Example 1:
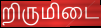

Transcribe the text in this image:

றிருமிடை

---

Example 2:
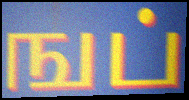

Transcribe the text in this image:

ஙப்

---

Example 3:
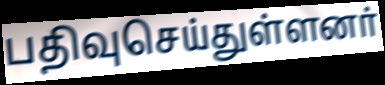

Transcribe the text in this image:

பதிவுசெய்துள்ளனர்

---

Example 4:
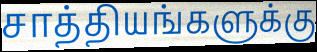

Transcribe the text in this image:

சாத்தியங்களுக்கு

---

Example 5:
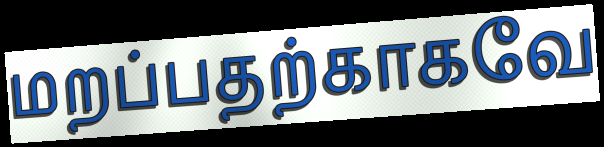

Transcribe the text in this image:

மறப்பதற்காகவே